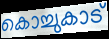
കൊച്ചുകാട്